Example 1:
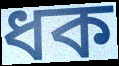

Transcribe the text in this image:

ধক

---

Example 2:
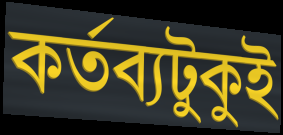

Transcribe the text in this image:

কর্তব্যটুকুই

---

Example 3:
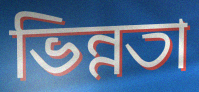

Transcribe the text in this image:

ভিন্নতা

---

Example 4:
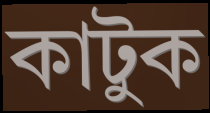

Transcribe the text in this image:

কাটুক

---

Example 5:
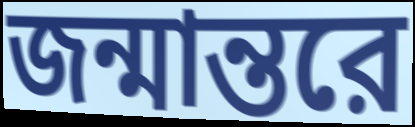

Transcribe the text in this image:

জন্মান্তরে